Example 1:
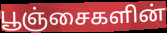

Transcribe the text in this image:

பூஞ்சைகளின்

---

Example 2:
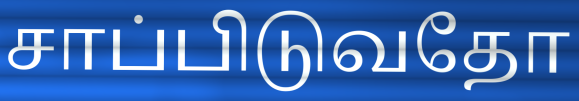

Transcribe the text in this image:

சாப்பிடுவதோ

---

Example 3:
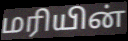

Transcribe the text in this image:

மரியின்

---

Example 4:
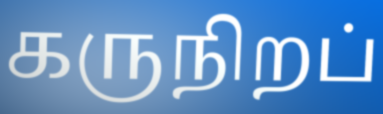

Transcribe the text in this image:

கருநிறப்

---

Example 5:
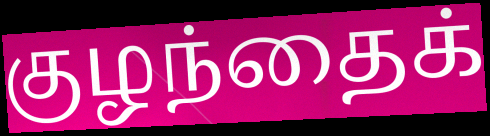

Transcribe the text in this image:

குழந்தைக்